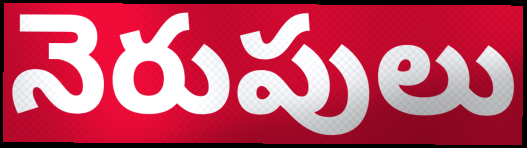
నెరుపులు